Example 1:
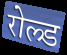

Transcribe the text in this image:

रोल्ड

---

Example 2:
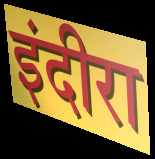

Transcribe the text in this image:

इंदीरा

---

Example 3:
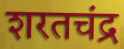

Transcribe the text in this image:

शरतचंद्र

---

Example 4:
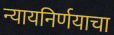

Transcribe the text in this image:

न्यायनिर्णयाचा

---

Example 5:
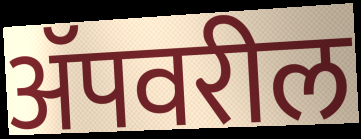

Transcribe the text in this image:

ॲपवरील